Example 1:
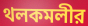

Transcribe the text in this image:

থলকমলীর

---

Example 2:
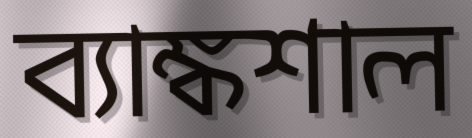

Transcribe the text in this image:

ব্যাঙ্কশাল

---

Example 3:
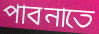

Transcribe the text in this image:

পাবনাতে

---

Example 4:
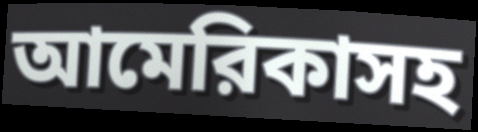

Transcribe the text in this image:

আমেরিকাসহ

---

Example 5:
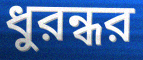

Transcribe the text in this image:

ধুরন্ধর